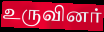
உருவினர்